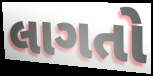
લાગતો